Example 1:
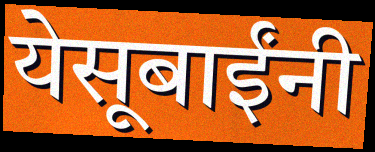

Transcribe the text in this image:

येसूबाईंनी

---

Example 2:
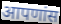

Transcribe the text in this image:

आपणांस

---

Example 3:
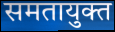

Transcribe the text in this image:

समतायुक्त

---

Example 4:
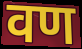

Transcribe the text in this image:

वण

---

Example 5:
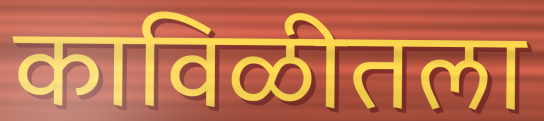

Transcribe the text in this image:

काविळीतला